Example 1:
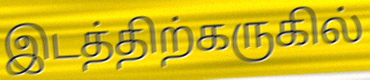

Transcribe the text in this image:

இடத்திற்கருகில்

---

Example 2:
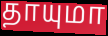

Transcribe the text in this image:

தாயுமா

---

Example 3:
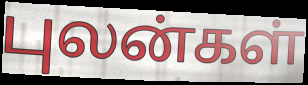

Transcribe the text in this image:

புலன்கள்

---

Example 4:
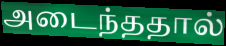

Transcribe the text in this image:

அடைந்ததால்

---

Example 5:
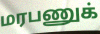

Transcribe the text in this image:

மரபணுக்